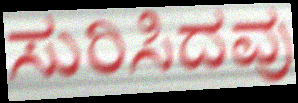
ಸುರಿಸಿದವು